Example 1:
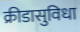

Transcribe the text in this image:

क्रीडासुविधा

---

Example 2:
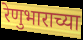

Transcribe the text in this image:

रेणुभाराच्या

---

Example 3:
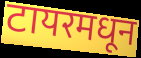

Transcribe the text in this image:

टायरमधून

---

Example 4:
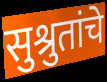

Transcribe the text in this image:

सुश्रुतांचे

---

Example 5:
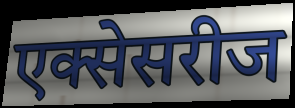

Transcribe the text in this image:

एक्सेसरीज